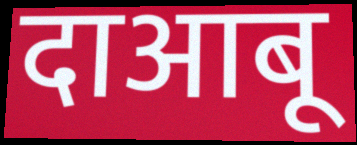
दाआबू